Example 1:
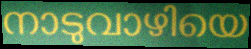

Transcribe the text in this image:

നാടുവാഴിയെ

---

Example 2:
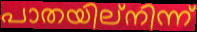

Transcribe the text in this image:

പാതയില്നിന്ന്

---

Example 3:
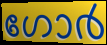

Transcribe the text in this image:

ഗോർ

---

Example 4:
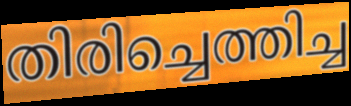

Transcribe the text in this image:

തിരിച്ചെത്തിച്ച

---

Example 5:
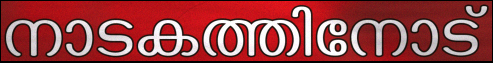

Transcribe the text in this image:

നാടകത്തിനോട്